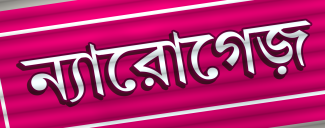
ন্যারোগেজ়